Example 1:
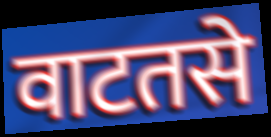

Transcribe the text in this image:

वाटतसे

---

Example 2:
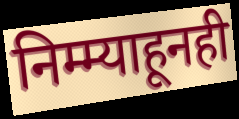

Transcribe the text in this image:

निम्म्याहूनही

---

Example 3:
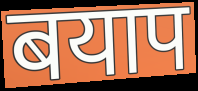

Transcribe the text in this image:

बयाप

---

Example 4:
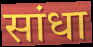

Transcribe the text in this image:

सांधा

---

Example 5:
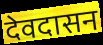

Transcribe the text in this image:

देवदासन